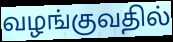
வழங்குவதில்